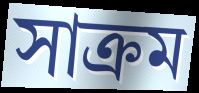
সাক্রম